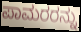
ಪಾಮರರನ್ನು